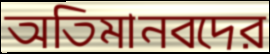
অতিমানবদের